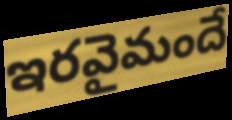
ఇరవైమందే